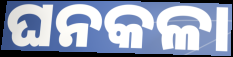
ଘନକଳା